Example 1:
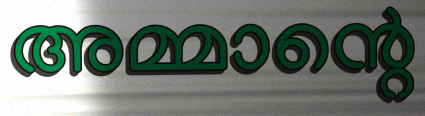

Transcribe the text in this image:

അമ്മാന്റെ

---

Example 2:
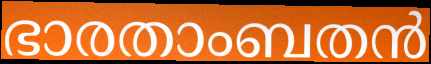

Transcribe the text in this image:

ഭാരതാംബതൻ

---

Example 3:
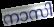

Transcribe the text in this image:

നാസി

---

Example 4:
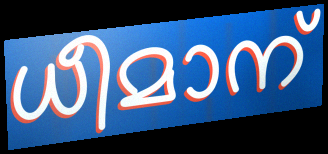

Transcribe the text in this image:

ധീമാന്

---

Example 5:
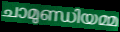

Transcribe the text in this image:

ചാമുണ്ഡിയമ്മ